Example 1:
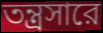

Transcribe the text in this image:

তন্ত্রসারে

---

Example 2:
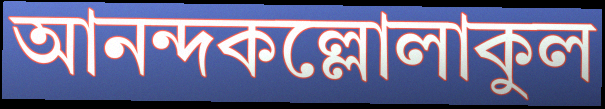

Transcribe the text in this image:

আনন্দকল্লোলাকুল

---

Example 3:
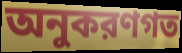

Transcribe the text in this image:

অনুকরণগত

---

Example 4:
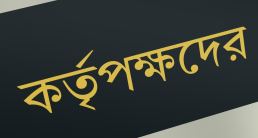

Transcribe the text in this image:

কর্তৃপক্ষদের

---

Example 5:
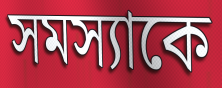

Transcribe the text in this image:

সমস্যাকে